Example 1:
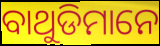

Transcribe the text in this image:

ବାଥୁଡିମାନେ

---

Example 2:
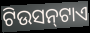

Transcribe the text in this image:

ଟିଉସନ୍‍ଟାଏ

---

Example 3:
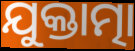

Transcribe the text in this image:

ଯୁକ୍ତାତ୍ମା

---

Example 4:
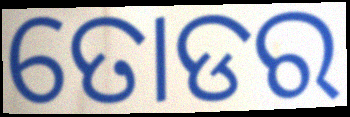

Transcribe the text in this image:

ତୋଡର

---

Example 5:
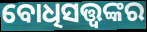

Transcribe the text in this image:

ବୋଧିସତ୍ତ୍ଵଙ୍କର